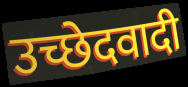
उच्छेदवादी